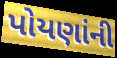
પોયણાંની